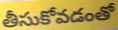
తీసుకోవడంతో